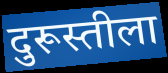
दुरूस्तीला